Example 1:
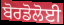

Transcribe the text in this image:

ਬੋਰਡੋਲੋਈ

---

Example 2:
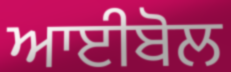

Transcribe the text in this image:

ਆਈਬੋਲ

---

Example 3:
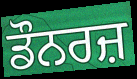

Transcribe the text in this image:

ਡੌਨਰਜ਼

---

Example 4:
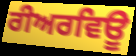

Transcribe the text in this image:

ਰੀਅਰਵਿਊ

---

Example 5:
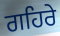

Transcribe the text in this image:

ਗਹਿਰੇ